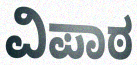
ವಿಪಾಠ